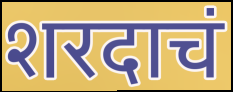
शरदाचं